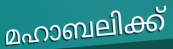
മഹാബലിക്ക്